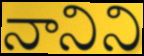
నానిని